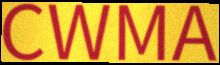
CWMA